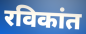
रविकांत